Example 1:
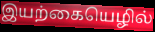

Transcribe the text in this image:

இயற்கையெழில்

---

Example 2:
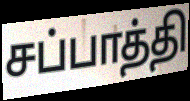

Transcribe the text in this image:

சப்பாத்தி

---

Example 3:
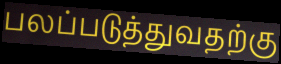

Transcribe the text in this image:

பலப்படுத்துவதற்கு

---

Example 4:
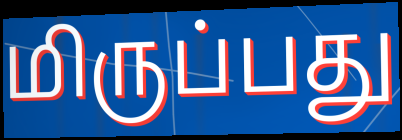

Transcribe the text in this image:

மிருப்பது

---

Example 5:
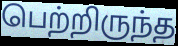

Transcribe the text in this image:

பெற்றிருந்த